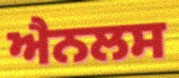
ਐਨਲਸ